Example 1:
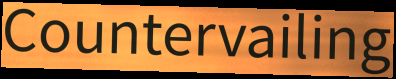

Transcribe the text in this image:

Countervailing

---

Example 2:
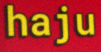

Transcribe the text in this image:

haju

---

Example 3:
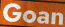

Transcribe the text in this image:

Goan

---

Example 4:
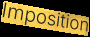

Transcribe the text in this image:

Imposition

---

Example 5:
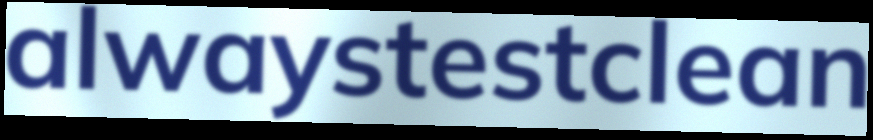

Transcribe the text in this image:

alwaystestclean